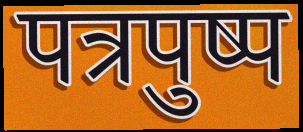
पत्रपुष्प